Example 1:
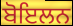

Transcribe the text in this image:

ਬੋਇਲਨ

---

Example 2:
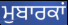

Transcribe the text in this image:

ਮੁਬਾਰਕਾਂ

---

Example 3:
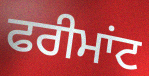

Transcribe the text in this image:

ਫਰੀਮਾਂਟ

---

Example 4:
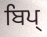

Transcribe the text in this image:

ਬਿਪ੍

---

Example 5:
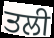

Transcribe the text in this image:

ਤਲੀ